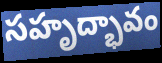
సహృద్భావం